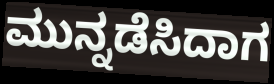
ಮುನ್ನಡೆಸಿದಾಗ